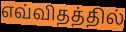
எவ்விதத்தில்